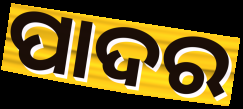
ପାଦର